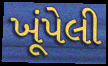
ખૂંપેલી